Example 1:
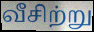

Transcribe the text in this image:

வீசிற்று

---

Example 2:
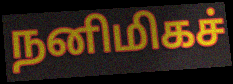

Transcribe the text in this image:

நனிமிகச்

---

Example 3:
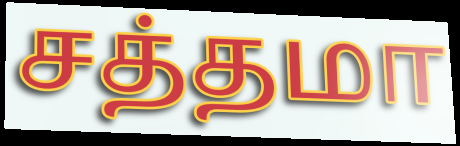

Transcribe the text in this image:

சத்தமா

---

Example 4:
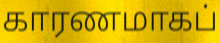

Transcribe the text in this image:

காரணமாகப்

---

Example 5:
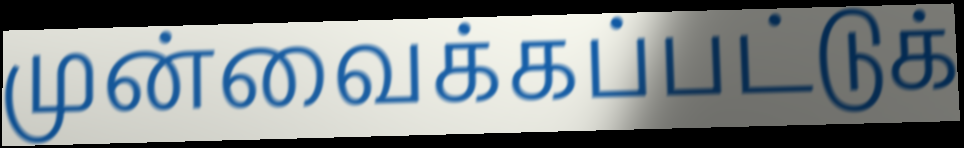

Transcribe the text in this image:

முன்வைக்கப்பட்டுக்